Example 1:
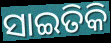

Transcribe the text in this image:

ସାଇତିକି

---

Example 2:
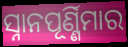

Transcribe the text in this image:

ସ୍ନାନପୂର୍ଣ୍ଣିମାର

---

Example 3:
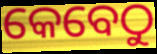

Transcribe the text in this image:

କେବେଠୁ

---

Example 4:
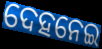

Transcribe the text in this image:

ଦେହନେଇ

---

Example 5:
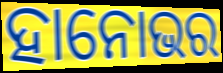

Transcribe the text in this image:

ହାନୋଭର